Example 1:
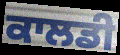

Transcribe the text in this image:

ਕਾਲਡੀ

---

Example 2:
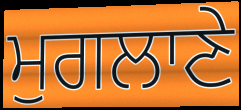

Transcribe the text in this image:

ਮੁਗਲਾਣੇ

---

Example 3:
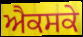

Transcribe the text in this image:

ਐਕਸਕੇ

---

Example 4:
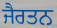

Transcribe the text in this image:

ਜੈਰਤਨ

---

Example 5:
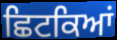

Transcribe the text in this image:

ਛਿਟਕਿਆਂ